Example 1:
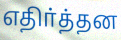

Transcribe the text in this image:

எதிர்த்தன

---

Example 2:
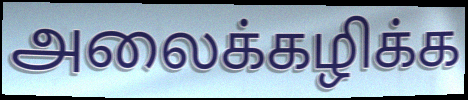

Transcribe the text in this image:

அலைக்கழிக்க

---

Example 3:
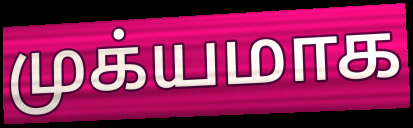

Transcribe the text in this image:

முக்யமாக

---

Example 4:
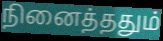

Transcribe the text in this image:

நினைத்ததும்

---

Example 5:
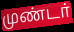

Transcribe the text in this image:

முண்டர்